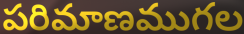
పరిమాణముగల